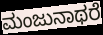
ಮಂಜುನಾಥರೆ